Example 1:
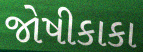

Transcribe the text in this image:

જોષીકાકા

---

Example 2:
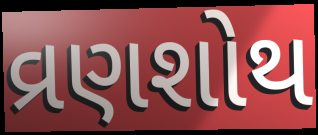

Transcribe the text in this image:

વ્રણશોથ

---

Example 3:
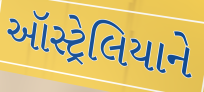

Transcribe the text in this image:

ઑસ્ટ્રેલિયાને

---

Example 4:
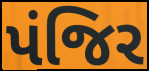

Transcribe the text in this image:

પંજિર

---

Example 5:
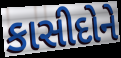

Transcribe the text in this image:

કાસીદોને